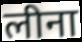
लीना